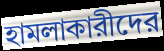
হামলাকারীদের